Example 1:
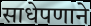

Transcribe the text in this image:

साधेपणाने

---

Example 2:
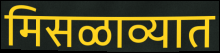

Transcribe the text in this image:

मिसळाव्यात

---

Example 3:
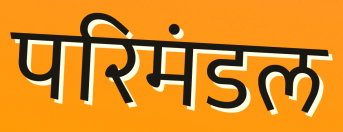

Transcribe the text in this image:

परिमंडल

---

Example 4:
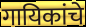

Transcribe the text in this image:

गायिकांचे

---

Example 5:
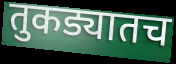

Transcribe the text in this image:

तुकड्यातच